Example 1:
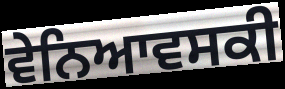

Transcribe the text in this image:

ਵੇਨਿਆਵਸਕੀ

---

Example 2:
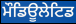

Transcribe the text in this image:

ਮੌਡਿਊਲੇਟਿਡ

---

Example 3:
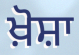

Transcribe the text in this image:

ਖ਼ੋਸ਼ਾ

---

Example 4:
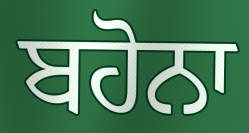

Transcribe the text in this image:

ਬਹੋਨਾ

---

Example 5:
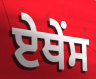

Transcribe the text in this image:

ਏਥੇਂਸ